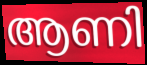
ആണി